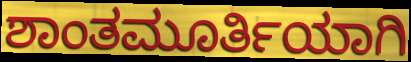
ಶಾಂತಮೂರ್ತಿಯಾಗಿ